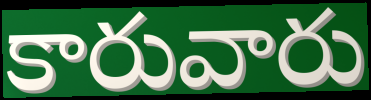
కారువారు